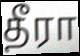
தீரா